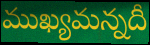
ముఖ్యమన్నదీ